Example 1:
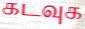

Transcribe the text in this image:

கடவுக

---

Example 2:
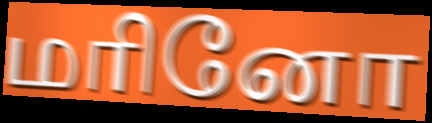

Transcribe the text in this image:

மரினோ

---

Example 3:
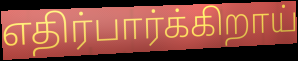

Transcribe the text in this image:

எதிர்பார்க்கிறாய்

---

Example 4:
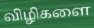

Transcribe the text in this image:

விழிகளை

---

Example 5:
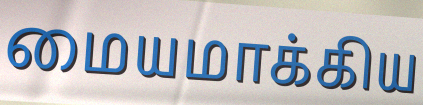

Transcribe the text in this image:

மையமாக்கிய